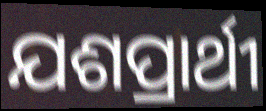
ଯଶପ୍ରାର୍ଥୀ